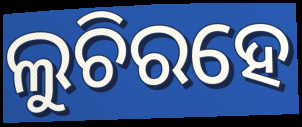
ଲୁଚିରହେ